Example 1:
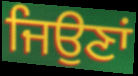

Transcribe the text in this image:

ਜਿਉਣਾਂ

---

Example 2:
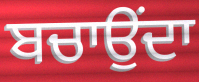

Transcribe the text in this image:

ਬਚਾਉਂਦਾ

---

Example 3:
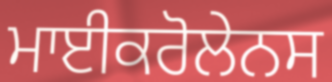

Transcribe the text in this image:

ਮਾਈਕਰੋਲੇਨਸ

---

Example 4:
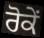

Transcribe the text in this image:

ਰੋਕੇਂ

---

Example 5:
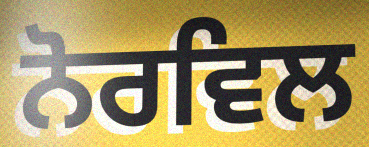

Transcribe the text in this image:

ਨੋਰਵਿਲ